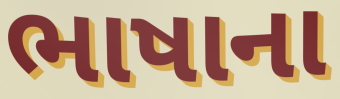
ભાષાના